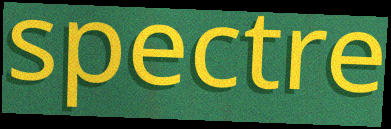
spectre